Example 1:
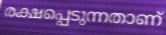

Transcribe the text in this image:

രക്ഷപ്പെടുന്നതാണ്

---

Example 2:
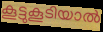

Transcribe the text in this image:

കൂട്ടുകൂടിയാൽ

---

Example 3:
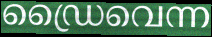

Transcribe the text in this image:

ഡ്രൈവെന്ന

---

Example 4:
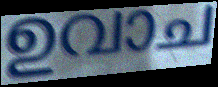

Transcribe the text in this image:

ഉവാച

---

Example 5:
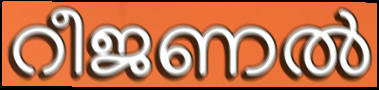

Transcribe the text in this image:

റീജണൽ